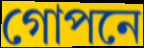
গোপনে